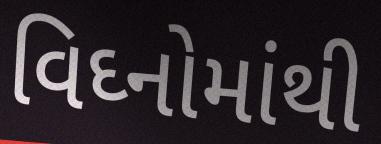
વિઘ્નોમાંથી